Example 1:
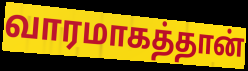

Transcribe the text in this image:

வாரமாகத்தான்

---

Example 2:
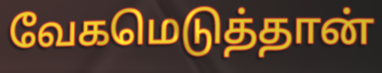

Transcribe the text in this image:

வேகமெடுத்தான்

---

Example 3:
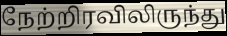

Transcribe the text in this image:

நேற்றிரவிலிருந்து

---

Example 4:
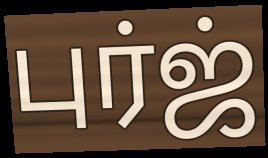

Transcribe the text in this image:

புர்ஜ்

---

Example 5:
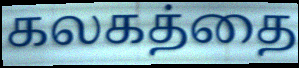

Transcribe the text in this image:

கலகத்தை